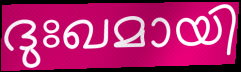
ദുഃഖമായി